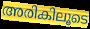
അരികിലൂടെ